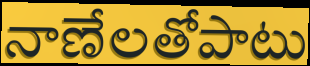
నాణేలతోపాటు